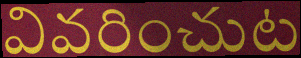
వివరించుట